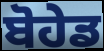
ਬੋਹੇਡ